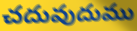
చదువుదుము